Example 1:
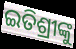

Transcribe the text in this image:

ଇତିଶ୍ରୀଙ୍କୁ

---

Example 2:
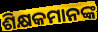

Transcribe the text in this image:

ଶିକ୍ଷକମାନଙ୍କ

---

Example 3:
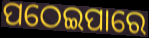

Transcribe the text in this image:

ପଠେଇପାରେ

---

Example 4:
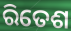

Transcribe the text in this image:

ରିତେଶ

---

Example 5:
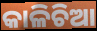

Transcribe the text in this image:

କାଳିଚିଆ